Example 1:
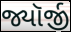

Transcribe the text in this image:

જ્યૉર્જી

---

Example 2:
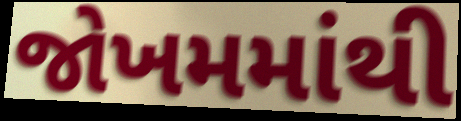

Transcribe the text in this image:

જોખમમાંથી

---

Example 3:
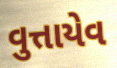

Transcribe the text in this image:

વુત્તાયેવ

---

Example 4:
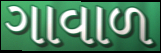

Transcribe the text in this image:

ગાવાળ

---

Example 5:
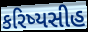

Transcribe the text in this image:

કરિષ્યસીહ